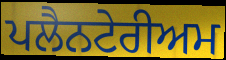
ਪਲੈਨਟੇਰੀਅਮ